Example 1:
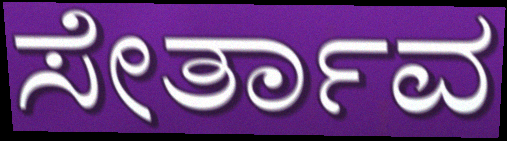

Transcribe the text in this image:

ಸೇರ್ತಾವ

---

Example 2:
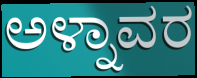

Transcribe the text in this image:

ಅಳ್ನಾವರ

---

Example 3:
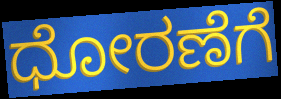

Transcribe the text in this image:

ಧೋರಣೆಗೆ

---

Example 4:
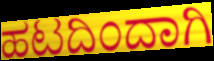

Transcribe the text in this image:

ಹಟದಿಂದಾಗಿ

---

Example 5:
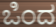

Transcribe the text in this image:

ಒಿಂದ